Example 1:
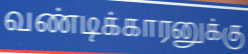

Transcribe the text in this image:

வண்டிக்காரனுக்கு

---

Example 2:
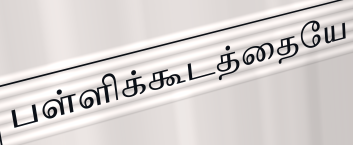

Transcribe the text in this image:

பள்ளிக்கூடத்தையே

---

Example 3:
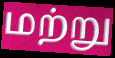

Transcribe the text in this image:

மற்று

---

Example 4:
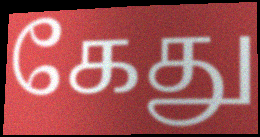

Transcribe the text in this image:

கேது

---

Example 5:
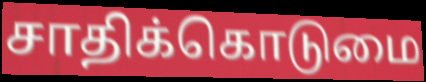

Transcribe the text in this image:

சாதிக்கொடுமை